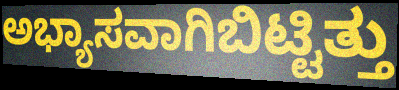
ಅಭ್ಯಾಸವಾಗಿಬಿಟ್ಟಿತ್ತು